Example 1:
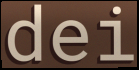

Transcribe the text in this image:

dei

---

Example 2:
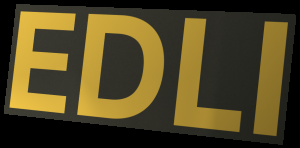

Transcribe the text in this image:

EDLI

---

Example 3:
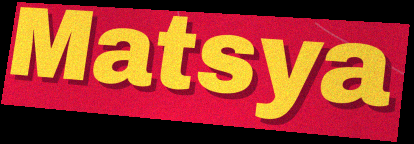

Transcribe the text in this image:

Matsya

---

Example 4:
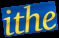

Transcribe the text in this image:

ithe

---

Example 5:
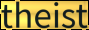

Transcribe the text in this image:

theist